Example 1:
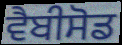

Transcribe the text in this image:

ਵੈਬੀਸੋਡ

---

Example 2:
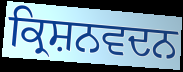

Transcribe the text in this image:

ਕ੍ਰਿਸ਼ਨਵਦਨ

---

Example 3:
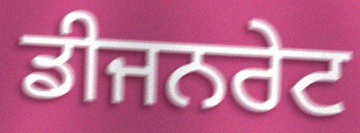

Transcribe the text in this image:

ਡੀਜਨਰੇਟ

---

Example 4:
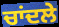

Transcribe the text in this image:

ਚਾਂਦਲੇ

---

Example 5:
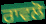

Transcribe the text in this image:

ਰਾਵਲੋ